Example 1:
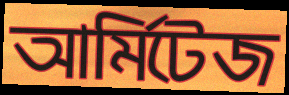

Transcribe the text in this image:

আর্মিটেজ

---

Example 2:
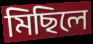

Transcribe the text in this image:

মিছিলে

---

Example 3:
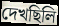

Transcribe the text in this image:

দেখছিলি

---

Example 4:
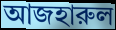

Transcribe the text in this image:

আজহারুল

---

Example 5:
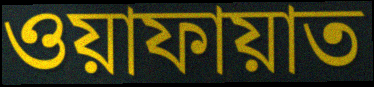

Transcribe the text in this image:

ওয়াফায়াত